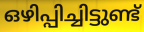
ഒഴിപ്പിച്ചിട്ടുണ്ട്